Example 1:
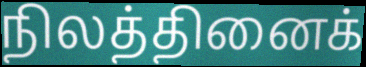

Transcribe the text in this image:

நிலத்தினைக்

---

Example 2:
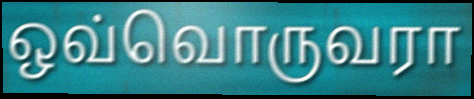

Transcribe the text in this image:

ஒவ்வொருவரா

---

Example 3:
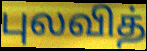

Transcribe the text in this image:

புலவித்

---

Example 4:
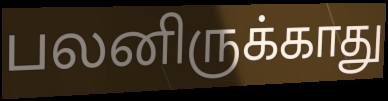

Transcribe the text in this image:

பலனிருக்காது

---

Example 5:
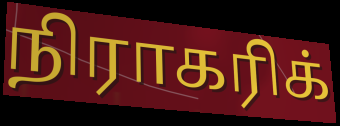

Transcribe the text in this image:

நிராகரிக்